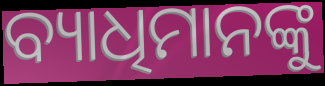
ବ୍ୟାଧିମାନଙ୍କୁ